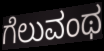
ಗೆಲುವಂಥ